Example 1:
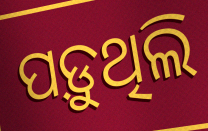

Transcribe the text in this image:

ପଡ଼ୁଥିଲି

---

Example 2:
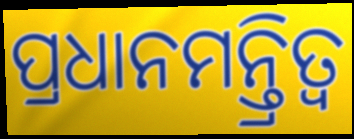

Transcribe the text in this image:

ପ୍ରଧାନମନ୍ତ୍ରିତ୍ଵ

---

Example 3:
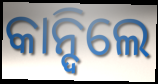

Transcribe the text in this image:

କାନ୍ଦିଲେ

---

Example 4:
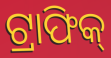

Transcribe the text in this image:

ଟ୍ରାଫିକ୍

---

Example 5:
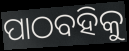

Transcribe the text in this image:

ପାଠବହିକୁ